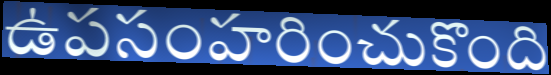
ఉపసంహరించుకొంది